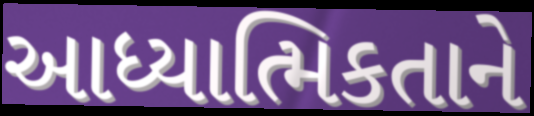
આધ્યાત્મિકતાને